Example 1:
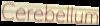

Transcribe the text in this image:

Cerebellum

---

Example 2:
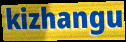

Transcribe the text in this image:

kizhangu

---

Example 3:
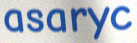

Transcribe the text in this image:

asaryc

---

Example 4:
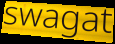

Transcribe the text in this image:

swagat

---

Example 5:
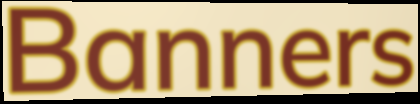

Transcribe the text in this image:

Banners